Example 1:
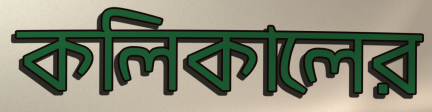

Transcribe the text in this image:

কলিকালের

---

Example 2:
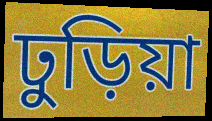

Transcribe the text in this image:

ঢুড়িয়া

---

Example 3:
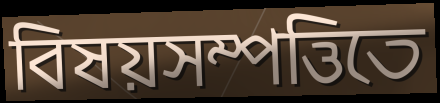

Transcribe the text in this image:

বিষয়সম্পত্তিতে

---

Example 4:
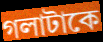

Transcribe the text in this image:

গলাটাকে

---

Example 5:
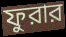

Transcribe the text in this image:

ফুরার